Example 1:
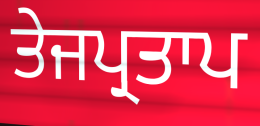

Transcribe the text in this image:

ਤੇਜਪ੍ਰਤਾਪ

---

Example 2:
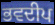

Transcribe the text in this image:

ਭਵਦੀਪ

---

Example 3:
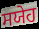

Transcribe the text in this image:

ਸਯੇਹ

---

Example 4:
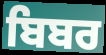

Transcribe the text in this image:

ਬਿਬਰ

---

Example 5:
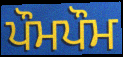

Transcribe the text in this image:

ਪੌਮਪੌਮ